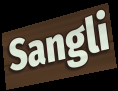
Sangli